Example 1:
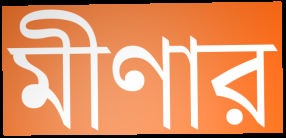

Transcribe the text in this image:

মীণার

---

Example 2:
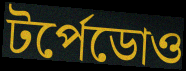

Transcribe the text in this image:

টর্পেডোও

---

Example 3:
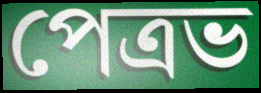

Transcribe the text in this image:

পেত্রভ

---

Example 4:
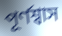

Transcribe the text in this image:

পূর্ণশ্বাস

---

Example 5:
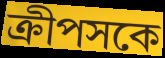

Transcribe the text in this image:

ক্রীপসকে